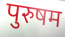
पुरुषम